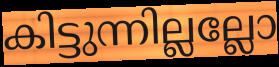
കിട്ടുന്നില്ലല്ലോ